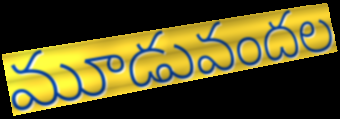
మూడువందల